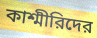
কাশ্মীরিদের